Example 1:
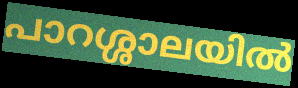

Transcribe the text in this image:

പാറശ്ശാലയിൽ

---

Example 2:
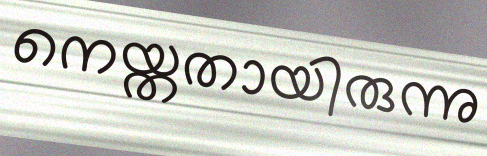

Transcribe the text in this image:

നെയ്തതായിരുന്നു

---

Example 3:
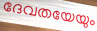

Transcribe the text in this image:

ദേവതയേയും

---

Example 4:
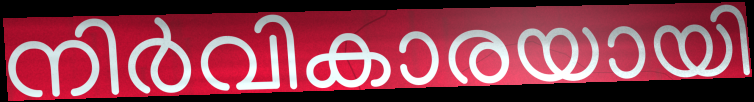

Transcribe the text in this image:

നിർവികാരയായി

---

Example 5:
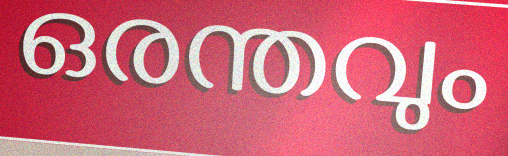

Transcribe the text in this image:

ഒരന്തവും